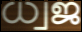
ധ്വജ